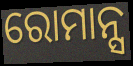
ରୋମାନ୍ସ